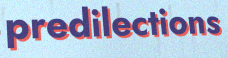
predilections